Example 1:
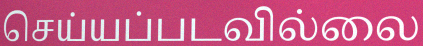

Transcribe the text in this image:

செய்யப்படவில்லை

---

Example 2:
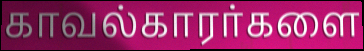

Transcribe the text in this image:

காவல்காரர்களை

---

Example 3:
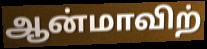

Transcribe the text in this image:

ஆன்மாவிற்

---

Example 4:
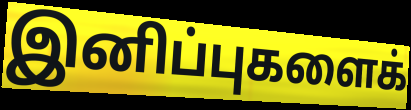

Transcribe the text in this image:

இனிப்புகளைக்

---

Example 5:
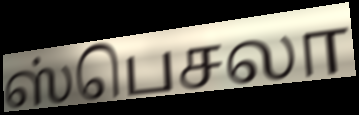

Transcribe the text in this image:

ஸ்பெசலா